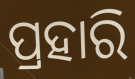
ପ୍ରହାରି